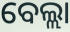
ବେଲ୍ଲା